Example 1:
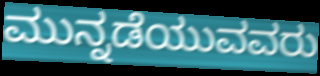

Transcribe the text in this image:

ಮುನ್ನಡೆಯುವವರು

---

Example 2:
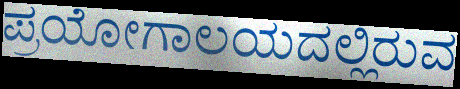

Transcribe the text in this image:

ಪ್ರಯೋಗಾಲಯದಲ್ಲಿರುವ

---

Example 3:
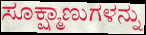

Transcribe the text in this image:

ಸೂಕ್ಷ್ಮಾಣುಗಳನ್ನು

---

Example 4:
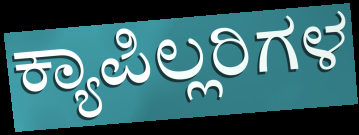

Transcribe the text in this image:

ಕ್ಯಾಪಿಲ್ಲರಿಗಳ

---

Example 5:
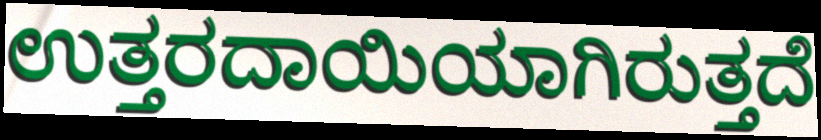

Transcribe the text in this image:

ಉತ್ತರದಾಯಿಯಾಗಿರುತ್ತದೆ